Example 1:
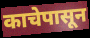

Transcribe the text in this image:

काचेपासून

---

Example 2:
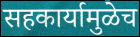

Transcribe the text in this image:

सहकार्यामुळेच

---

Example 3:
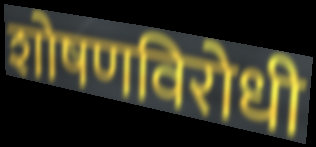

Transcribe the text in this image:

शोषणविरोधी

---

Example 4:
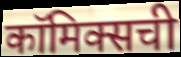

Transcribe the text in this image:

कॉमिक्सची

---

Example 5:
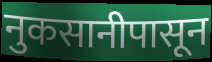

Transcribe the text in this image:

नुकसानीपासून